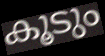
കൂടും